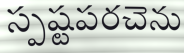
స్పష్టపరచెను